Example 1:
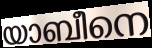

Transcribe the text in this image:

യാബീനെ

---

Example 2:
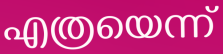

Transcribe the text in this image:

എത്രയെന്ന്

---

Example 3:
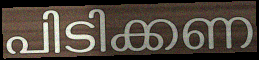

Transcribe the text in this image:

പിടിക്കണ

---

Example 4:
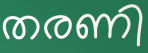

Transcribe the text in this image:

തരണി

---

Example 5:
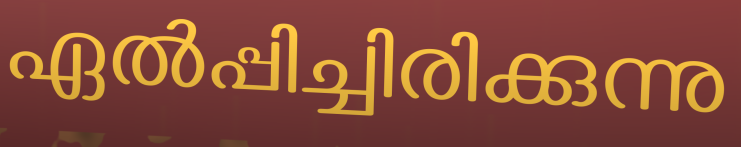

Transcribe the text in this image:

ഏൽപ്പിച്ചിരിക്കുന്നു